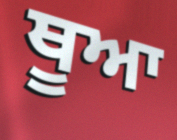
ਥੂਆ